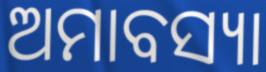
ଅମାବସ୍ୟା